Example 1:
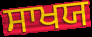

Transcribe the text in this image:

ਸਾਖਯ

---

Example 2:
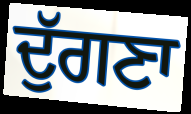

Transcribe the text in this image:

ਦੁੱਗਣਾ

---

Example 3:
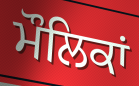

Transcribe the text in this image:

ਮੌਲਿਕਾਂ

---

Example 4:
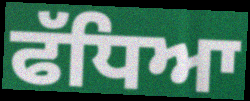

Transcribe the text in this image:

ਫੱਧਿਆ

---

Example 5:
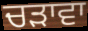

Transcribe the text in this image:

ਚੜਾਵਾ